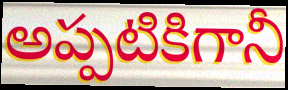
అప్పటికిగానీ